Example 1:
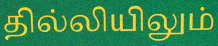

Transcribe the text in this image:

தில்லியிலும்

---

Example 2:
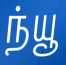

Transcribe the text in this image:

ந்யூ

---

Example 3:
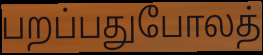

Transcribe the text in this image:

பறப்பதுபோலத்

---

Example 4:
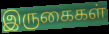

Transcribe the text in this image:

இருகைகள்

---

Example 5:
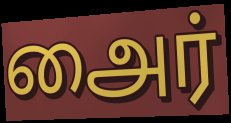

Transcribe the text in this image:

அைர்